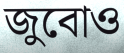
জুবোও